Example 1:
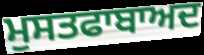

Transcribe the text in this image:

ਮੁਸਤਫਾਬਾਅਦ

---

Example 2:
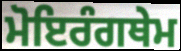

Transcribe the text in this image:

ਮੋਇਰੰਗਥੇਮ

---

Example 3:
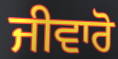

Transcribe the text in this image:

ਜੀਵਾਰੋ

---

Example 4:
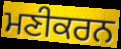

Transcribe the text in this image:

ਮਣੀਕਰਨ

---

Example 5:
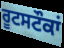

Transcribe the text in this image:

ਰੂਟਸਟੌਕਾਂ